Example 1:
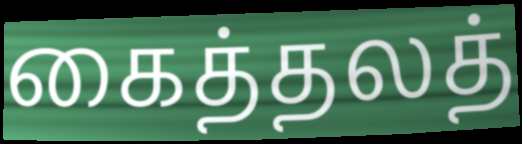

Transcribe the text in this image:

கைத்தலத்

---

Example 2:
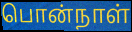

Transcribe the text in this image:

பொன்நாள்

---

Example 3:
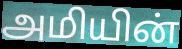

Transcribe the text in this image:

அமியின்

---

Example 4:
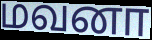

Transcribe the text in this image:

மவனா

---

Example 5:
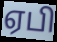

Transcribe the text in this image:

ஏபி